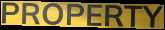
PROPERTY